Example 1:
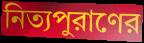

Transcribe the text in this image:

নিত্যপুরাণের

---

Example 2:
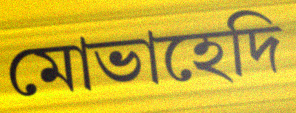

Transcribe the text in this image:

মোভাহেদি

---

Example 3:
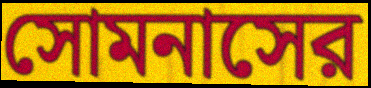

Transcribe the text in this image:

সোমনাসের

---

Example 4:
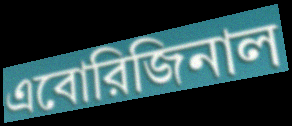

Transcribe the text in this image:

এবোরিজিনাল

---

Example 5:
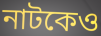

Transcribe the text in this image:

নাটকেও